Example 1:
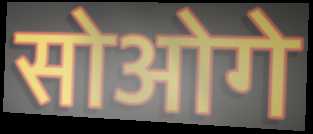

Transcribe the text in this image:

सोओगे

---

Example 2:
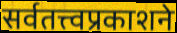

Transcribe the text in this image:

सर्वतत्त्वप्रकाशने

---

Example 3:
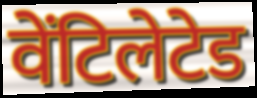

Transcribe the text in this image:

वेंटिलेटेड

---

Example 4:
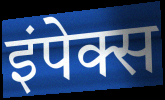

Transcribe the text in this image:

इंपेक्स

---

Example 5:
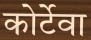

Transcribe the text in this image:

कोर्टेवा